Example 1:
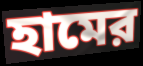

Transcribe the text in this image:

হামের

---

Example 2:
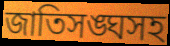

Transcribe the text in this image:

জাতিসঙ্ঘসহ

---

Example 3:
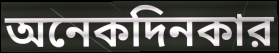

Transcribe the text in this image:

অনেকদিনকার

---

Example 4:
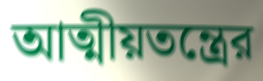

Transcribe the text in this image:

আত্মীয়তন্ত্রের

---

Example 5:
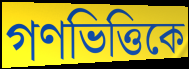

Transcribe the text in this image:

গণভিত্তিকে